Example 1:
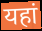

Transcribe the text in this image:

यहां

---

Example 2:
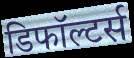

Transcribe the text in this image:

डिफॉल्टर्स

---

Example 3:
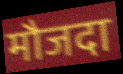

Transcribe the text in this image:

मौजदा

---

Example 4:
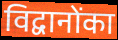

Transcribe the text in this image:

विद्वानोंका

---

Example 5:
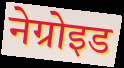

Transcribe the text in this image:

नेग्रोइड